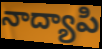
నాద్యాపి